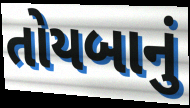
તોયબાનું